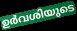
ഉർവശിയുടെ